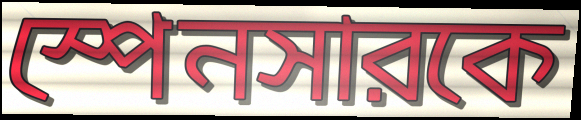
স্পেনসারকে